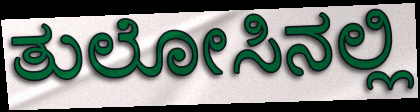
ತುಲೋಸಿನಲ್ಲಿ